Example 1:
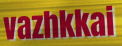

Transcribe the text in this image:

vazhkkai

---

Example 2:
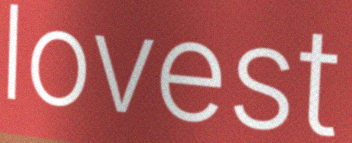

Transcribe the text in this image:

lovest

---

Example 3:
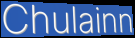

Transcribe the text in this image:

Chulainn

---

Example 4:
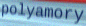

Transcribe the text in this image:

polyamory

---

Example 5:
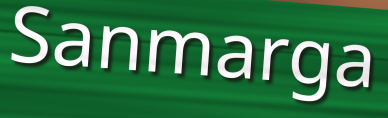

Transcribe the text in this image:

Sanmarga